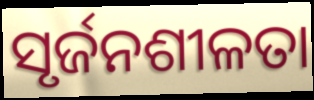
ସୃର୍ଜନଶୀଳତା